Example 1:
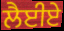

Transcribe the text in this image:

ਲੈਈਏ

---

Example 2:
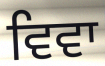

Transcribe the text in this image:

ਵਿਵਾ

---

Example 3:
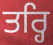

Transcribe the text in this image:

ਤਰ੍ਹਿ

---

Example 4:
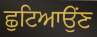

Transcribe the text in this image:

ਛੁਟਿਆਉਂਣ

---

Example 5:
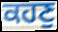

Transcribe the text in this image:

ਕਹਣੁ